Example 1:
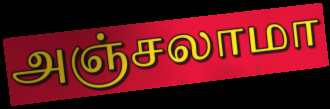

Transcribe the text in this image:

அஞ்சலாமா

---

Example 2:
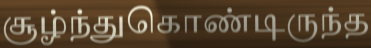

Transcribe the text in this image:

சூழ்ந்துகொண்டிருந்த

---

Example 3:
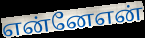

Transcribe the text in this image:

என்னேஎன்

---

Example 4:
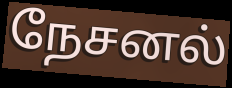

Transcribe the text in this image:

நேசனல்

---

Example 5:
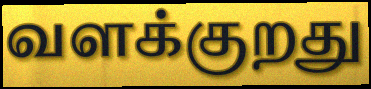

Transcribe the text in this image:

வளக்குறது